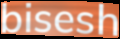
bisesh